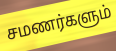
சமணர்களும்